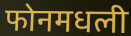
फोनमधली